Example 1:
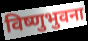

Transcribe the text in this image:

विष्णुभुवना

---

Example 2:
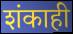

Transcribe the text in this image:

शंकाही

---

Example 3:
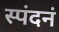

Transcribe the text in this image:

स्पंदनं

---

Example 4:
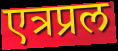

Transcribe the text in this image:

एत्रप्रल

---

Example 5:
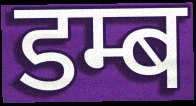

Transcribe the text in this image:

डम्ब